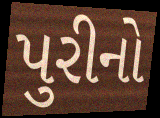
પુરીનો